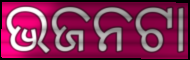
ଭଜନଟା